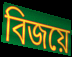
বিজয়ে